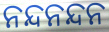
ନନ୍ଦନନ୍ଦନ